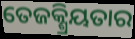
ତେଜକ୍ଶ୍ରିୟତାର